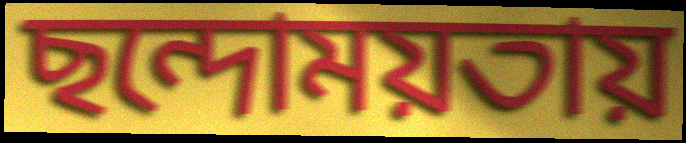
ছন্দোময়তায়